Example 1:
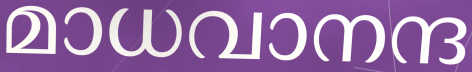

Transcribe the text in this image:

മാധവാനന്ദ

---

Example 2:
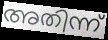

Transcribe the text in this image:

അതിന്ന്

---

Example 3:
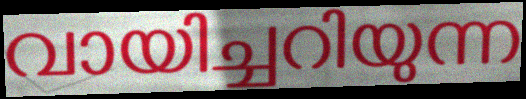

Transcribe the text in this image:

വായിച്ചറിയുന്ന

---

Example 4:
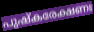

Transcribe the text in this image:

പുഷ്കരേക്ഷണഃ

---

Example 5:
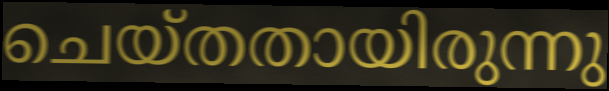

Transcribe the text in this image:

ചെയ്തതായിരുന്നു